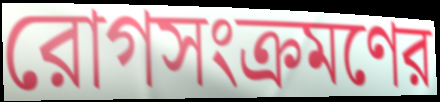
রোগসংক্রমণের